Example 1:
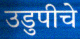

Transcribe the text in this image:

उडुपीचे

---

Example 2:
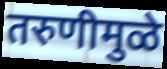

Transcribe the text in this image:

तरुणीमुळे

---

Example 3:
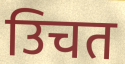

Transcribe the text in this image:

उिचत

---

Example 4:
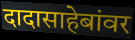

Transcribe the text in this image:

दादासाहेबांवर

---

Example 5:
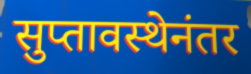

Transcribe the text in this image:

सुप्तावस्थेनंतर